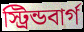
স্ট্রিন্ডবার্গ